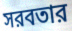
সরবতার